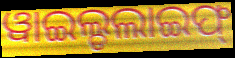
ୱାଇଲ୍ଡଲାଇଫ୍